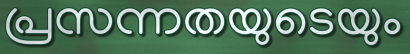
പ്രസന്നതയുടെയും